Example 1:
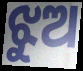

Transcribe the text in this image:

ଝୁଅ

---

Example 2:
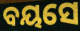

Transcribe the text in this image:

ବୟସେ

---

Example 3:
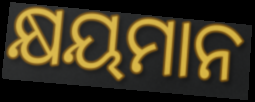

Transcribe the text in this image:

କ୍ଷୟମାନ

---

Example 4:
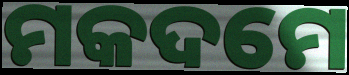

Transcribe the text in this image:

ମକଦମେ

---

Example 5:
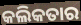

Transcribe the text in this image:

କଲିକତାର